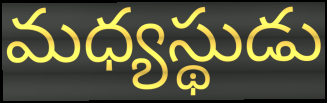
మధ్యస్థుడు